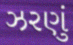
ઝરણું